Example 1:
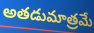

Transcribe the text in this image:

అతడుమాత్రమే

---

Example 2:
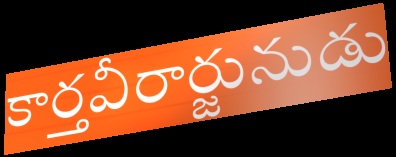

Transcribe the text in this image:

కార్తవీరార్జునుడు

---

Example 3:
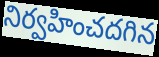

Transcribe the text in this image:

నిర్వహించదగిన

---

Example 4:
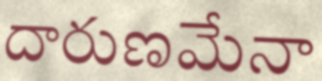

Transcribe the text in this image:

దారుణమేనా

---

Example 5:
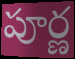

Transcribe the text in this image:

పూర్ణ